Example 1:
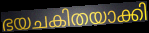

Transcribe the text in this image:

ഭയചകിതയാക്കി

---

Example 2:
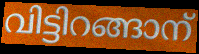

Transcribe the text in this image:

വിട്ടിറങ്ങാന്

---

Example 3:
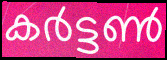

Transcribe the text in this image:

കർട്ടൺ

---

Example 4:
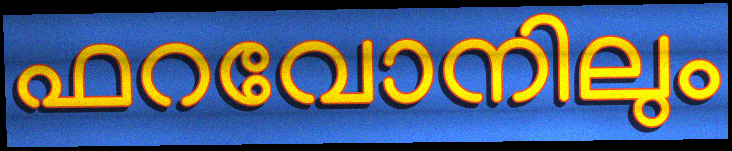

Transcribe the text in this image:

ഫറവോനിലും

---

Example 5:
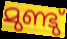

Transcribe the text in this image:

മുണ്ടു്